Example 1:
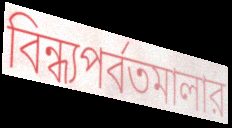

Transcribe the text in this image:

বিন্ধ্যপর্বতমালার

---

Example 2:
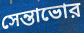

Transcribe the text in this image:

সেন্তাভোর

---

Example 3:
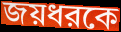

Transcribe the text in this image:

জয়ধরকে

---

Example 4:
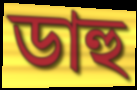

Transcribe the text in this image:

ডাহু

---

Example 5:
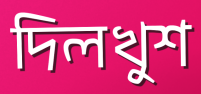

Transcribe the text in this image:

দিলখুশ